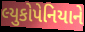
લ્યુકોપેનિયાને